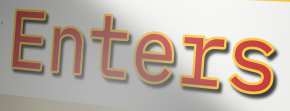
Enters